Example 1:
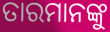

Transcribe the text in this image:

ତାରମାନଙ୍କୁ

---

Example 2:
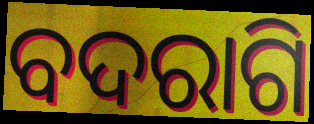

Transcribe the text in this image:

ବଦରାଗି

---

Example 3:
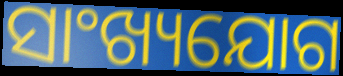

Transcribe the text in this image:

ସାଂଖ୍ୟଯୋଗ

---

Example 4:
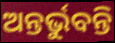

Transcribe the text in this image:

ଅନ୍ତର୍ଭୁବନ୍ତି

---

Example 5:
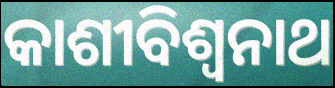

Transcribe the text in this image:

କାଶୀବିଶ୍ଵନାଥ